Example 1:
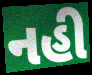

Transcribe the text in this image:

નહી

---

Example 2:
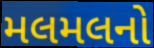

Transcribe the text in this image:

મલમલનો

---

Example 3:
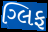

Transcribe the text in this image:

ગ્લિફ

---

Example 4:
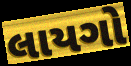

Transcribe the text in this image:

લાયગો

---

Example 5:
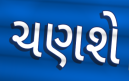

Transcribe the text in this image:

ચણશે